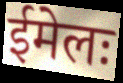
ईमेलः